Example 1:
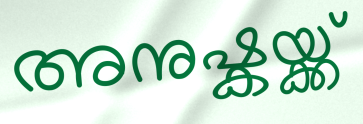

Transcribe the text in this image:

അനുഷ്കയ്ക്ക്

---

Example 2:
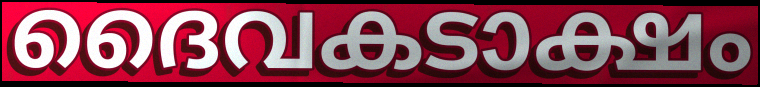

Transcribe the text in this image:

ദൈവകടാക്ഷം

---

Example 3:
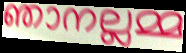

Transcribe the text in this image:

ഞാനല്ലമ്മ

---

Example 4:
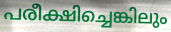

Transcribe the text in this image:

പരീക്ഷിച്ചെങ്കിലും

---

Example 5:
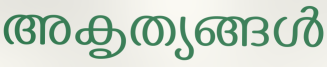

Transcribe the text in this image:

അകൃത്യങ്ങൾ